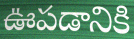
ఊపడానికి